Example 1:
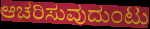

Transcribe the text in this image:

ಆಚರಿಸುವುದುಂಟು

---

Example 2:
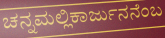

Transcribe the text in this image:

ಚನ್ನಮಲ್ಲಿಕಾರ್ಜುನನೆಂಬ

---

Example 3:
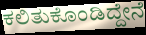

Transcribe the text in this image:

ಕಲಿತುಕೊಂಡಿದ್ದೇನೆ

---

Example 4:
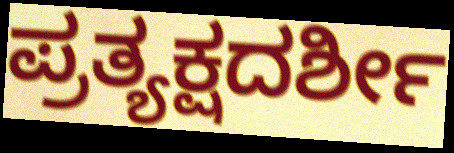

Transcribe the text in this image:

ಪ್ರತ್ಯಕ್ಷದರ್ಶೀ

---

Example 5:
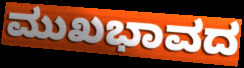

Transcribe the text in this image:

ಮುಖಭಾವದ